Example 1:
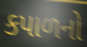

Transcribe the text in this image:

કપાળનો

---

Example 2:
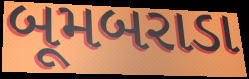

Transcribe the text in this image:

બૂમબરાડા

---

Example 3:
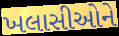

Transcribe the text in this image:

ખલાસીઓને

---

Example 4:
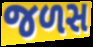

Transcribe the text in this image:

જળસ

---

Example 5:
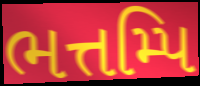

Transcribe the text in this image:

ભત્તમ્પિ